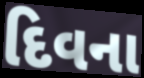
દિવના